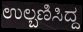
ಉಲ್ಬಣಿಸಿದ್ದ